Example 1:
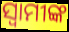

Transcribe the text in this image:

ସ୍ଵାମୀଙ୍କ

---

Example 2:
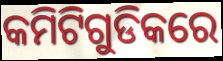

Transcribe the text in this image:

କମିଟିଗୁଡିକରେ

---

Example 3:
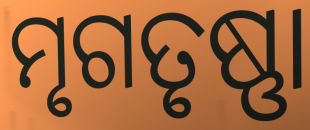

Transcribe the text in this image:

ମୃଗତୃଷ୍ଣା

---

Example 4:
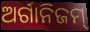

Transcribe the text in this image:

ଅର୍ଗାନିଜମ୍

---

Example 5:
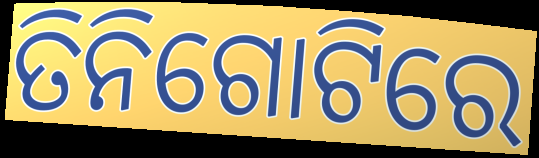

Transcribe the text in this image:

ତିନିଗୋଟିରେ